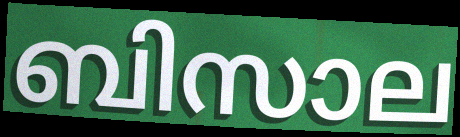
ബിസാല